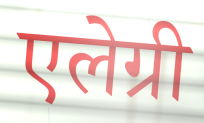
एलेग्री